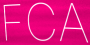
FCA